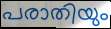
പരാതിയും